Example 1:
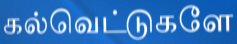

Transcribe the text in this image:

கல்வெட்டுகளே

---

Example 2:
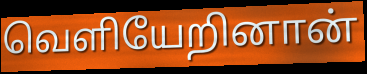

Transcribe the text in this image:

வெளியேறினான்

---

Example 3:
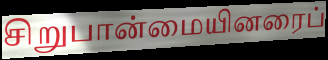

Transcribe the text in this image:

சிறுபான்மையினரைப்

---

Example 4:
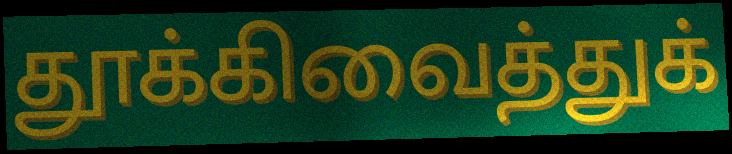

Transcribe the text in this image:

தூக்கிவைத்துக்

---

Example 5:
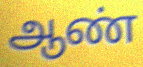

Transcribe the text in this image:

ஆண்